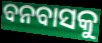
ବନବାସକୁ